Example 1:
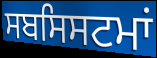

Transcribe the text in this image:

ਸਬਸਿਸਟਮਾਂ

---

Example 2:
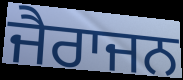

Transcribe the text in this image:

ਜੈਰਾਜਨ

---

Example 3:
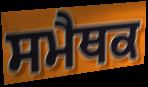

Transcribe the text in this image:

ਸਮੈਥਕ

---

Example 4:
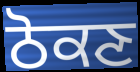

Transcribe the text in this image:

ਠੋਕਣ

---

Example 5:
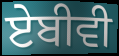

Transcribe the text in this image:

ਏਬੀਵੀ